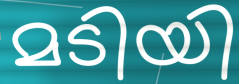
മടിയി